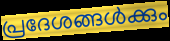
പ്രദേശങ്ങൾക്കും